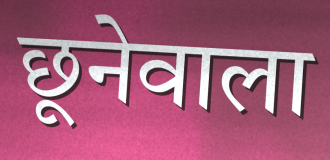
छूनेवाला